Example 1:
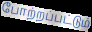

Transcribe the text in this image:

போற்றப்பட்டும்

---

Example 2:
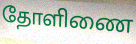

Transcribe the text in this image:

தோளிணை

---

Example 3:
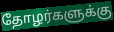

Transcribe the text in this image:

தோழர்களுக்கு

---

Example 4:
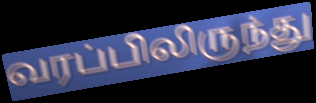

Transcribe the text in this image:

வரப்பிலிருந்து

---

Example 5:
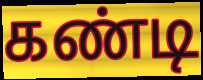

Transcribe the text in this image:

கண்டி